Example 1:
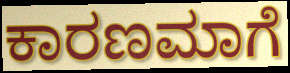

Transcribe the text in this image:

ಕಾರಣಮಾಗೆ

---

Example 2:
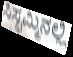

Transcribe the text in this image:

ಸಿಸ್ಟಮ್ಮಿನಲ್ಲಿ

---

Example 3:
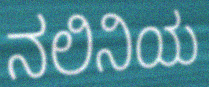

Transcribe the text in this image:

ನಲಿನಿಯ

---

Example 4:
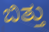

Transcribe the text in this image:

ಬಿತ್ತು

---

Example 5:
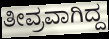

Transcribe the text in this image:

ತೀವ್ರವಾಗಿದ್ದ